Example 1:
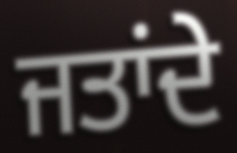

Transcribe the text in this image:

ਜਤਾਂਦੇ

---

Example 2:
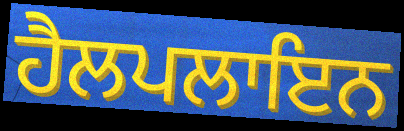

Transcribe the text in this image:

ਹੈਲਪਲਾਇਨ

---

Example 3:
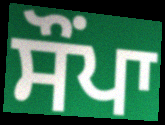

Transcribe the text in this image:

ਸੌਂਪਾ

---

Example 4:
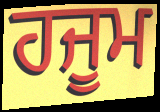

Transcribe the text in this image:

ਹਜੂਮ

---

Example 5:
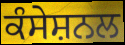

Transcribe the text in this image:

ਕੰਸੇਸ਼ਨਲ